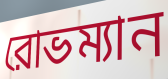
রোভম্যান